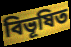
বিভূষিত